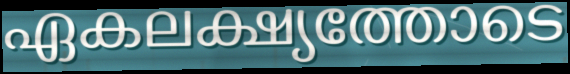
ഏകലക്ഷ്യത്തോടെ